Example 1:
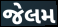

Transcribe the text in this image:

જેલમ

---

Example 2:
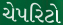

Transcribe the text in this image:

ચેપરિટો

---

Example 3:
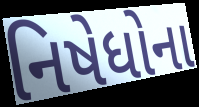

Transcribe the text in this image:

નિષેધોના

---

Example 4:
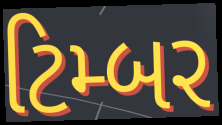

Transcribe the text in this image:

ટિમ્બર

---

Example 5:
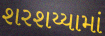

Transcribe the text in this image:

શરશય્યામાં